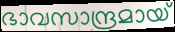
ഭാവസാന്ദ്രമായ്